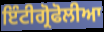
ਇੰਟੀਗ੍ਰੋਫੋਲੀਆ